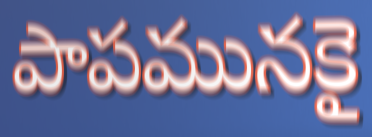
పాపమునకై